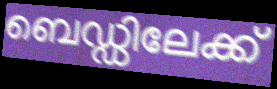
ബെഡ്ഡിലേക്ക്